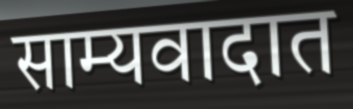
साम्यवादात